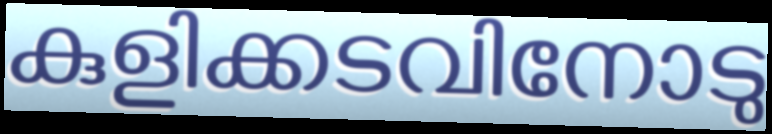
കുളിക്കടവിനോടു